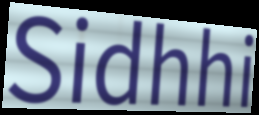
Sidhhi